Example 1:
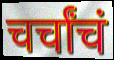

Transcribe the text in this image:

चर्चांचं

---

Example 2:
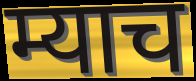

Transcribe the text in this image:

म्याच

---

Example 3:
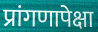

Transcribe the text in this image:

प्रांगणापेक्षा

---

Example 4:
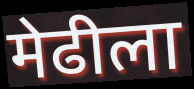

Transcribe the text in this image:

मेढीला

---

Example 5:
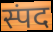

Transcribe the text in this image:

स्पंद